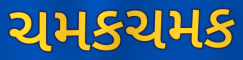
ચમકચમક